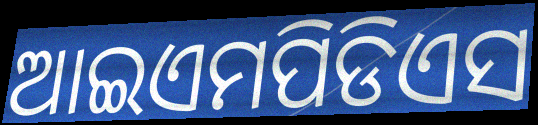
ଆଇଏମପିଡିଏସ